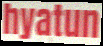
hyatun